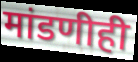
मांडणीही